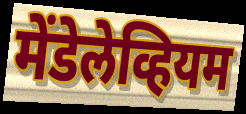
मेंडेलेव्हियम